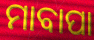
ମାବାପା